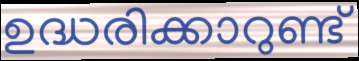
ഉദ്ധരിക്കാറുണ്ട്